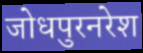
जोधपुरनरेश